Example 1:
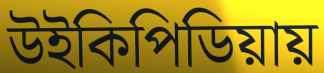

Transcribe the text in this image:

উইকিপিডিয়ায়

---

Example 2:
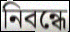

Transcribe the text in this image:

নিবন্ধে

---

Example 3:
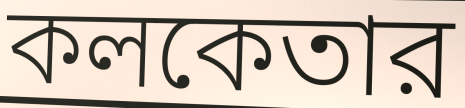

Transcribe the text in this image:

কলকেতার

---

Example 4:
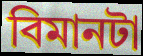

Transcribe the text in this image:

বিমানটা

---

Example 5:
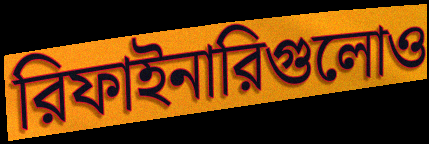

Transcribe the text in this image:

রিফাইনারিগুলোও